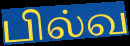
பில்வ